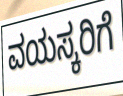
ವಯಸ್ಕರಿಗೆ